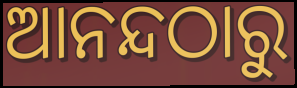
ଆନନ୍ଦଠାରୁ